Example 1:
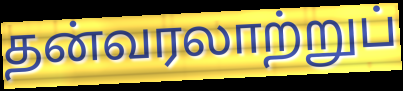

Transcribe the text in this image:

தன்வரலாற்றுப்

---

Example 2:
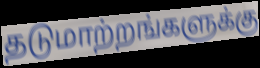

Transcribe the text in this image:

தடுமாற்றங்களுக்கு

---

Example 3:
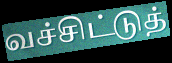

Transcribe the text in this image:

வச்சிட்டுத்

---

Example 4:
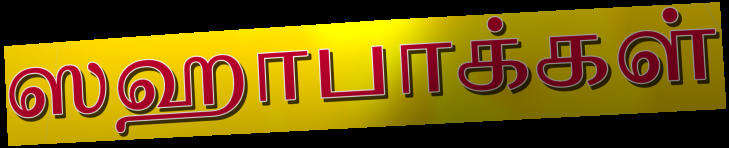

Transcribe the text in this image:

ஸஹாபாக்கள்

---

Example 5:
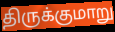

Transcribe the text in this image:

திருக்குமாறு